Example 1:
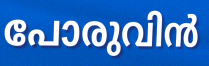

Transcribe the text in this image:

പോരുവിൻ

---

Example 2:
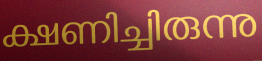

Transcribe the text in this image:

ക്ഷണിച്ചിരുന്നു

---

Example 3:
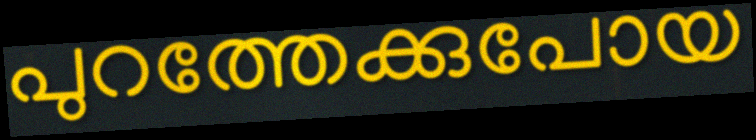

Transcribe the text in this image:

പുറത്തേക്കുപോയ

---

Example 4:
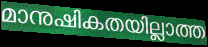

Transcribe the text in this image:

മാനുഷികതയില്ലാത്ത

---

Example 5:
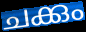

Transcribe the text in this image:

ചക്കും